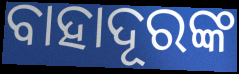
ବାହାଦୂରଙ୍କ